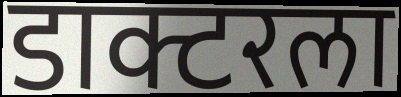
डाक्टरला